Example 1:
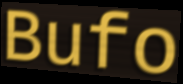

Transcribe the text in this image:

Bufo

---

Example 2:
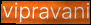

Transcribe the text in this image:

vipravani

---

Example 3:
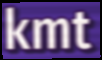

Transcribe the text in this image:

kmt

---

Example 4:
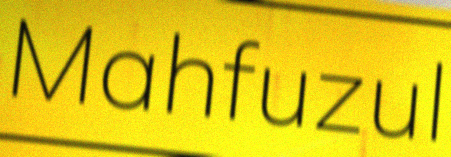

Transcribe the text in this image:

Mahfuzul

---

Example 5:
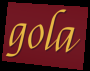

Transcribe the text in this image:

gola